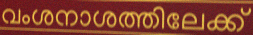
വംശനാശത്തിലേക്ക്